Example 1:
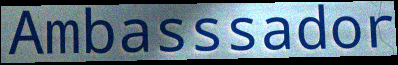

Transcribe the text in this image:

Ambasssador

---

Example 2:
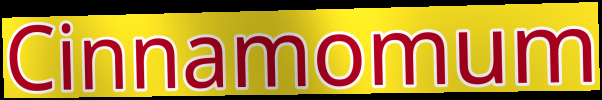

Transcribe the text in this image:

Cinnamomum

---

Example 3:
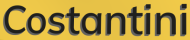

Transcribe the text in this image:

Costantini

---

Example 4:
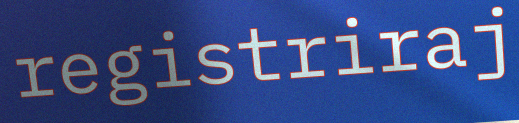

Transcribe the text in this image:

registriraj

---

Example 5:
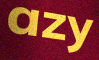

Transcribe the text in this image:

azy